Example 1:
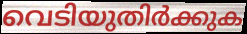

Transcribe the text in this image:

വെടിയുതിർക്കുക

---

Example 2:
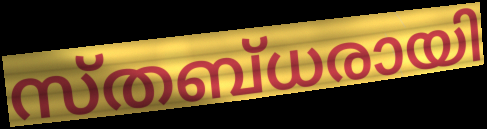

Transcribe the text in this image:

സ്തബ്ധരായി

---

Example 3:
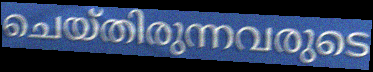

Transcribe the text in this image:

ചെയ്തിരുന്നവരുടെ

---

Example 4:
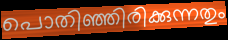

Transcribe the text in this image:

പൊതിഞ്ഞിരിക്കുന്നതും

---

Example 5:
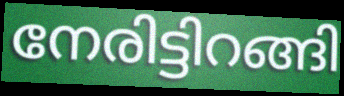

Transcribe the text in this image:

നേരിട്ടിറങ്ങി